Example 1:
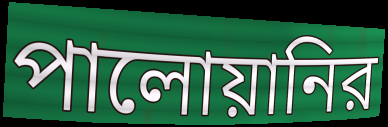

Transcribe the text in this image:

পালোয়ানির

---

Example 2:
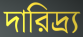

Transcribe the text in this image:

দারিদ্র্য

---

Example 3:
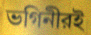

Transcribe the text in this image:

ভগিনীরই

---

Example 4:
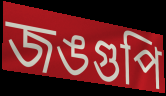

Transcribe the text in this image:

জঙগুপি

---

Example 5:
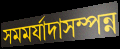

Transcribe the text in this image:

সমমর্যাদাসম্পন্ন